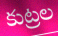
కుట్రల